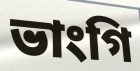
ভাংগি